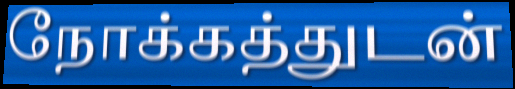
நோக்கத்துடன்